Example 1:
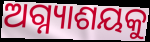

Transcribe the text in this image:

ଅଗ୍ନ୍ୟାଶୟକୁ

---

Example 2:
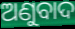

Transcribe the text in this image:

ଅଣୁବାଦ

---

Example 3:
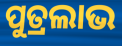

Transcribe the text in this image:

ପୁତ୍ରଲାଭ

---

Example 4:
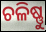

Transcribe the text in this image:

ଚଳିଷ୍ଣୁ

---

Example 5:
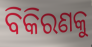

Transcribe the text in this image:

ବିକିରଣକୁ